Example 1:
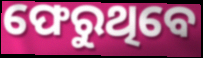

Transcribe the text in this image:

ଫେରୁଥିବେ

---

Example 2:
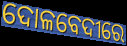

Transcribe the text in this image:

ଦୋଳବେଦୀରେ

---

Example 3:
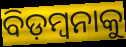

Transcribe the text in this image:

ବିଡ଼ମ୍ୱନାକୁ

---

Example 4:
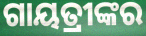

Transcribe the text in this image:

ଗାୟତ୍ରୀଙ୍କର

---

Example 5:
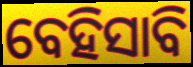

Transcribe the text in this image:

ବେହିସାବି